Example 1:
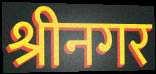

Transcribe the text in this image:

श्रीनगर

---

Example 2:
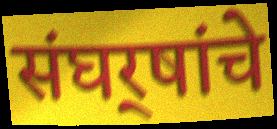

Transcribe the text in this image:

संघर्षांचे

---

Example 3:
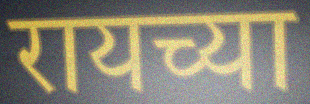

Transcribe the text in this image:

रायच्या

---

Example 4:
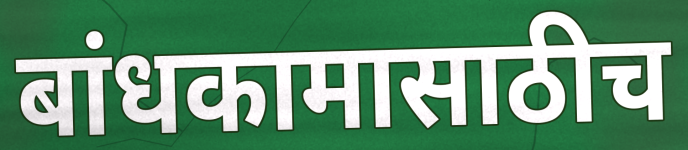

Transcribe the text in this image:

बांधकामासाठीच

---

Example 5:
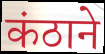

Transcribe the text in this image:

कंठाने